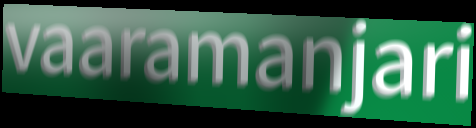
vaaramanjari